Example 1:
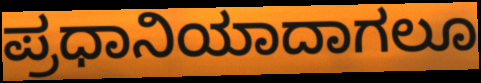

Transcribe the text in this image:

ಪ್ರಧಾನಿಯಾದಾಗಲೂ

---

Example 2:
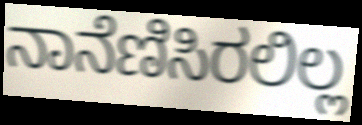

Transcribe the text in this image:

ನಾನೆಣಿಸಿರಲಿಲ್ಲ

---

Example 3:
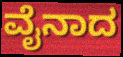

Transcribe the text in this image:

ವೈನಾದ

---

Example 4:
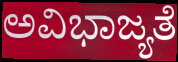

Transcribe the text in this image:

ಅವಿಭಾಜ್ಯತೆ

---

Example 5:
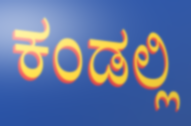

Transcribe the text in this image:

ಕಂಡಲ್ಲಿ